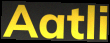
Aatli